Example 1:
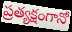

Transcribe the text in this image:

ప్రత్యక్షంగానో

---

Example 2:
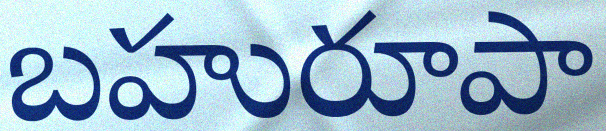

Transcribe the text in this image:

బహురూపా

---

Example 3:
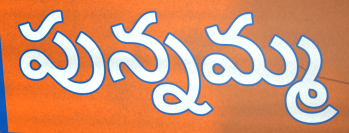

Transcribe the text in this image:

పున్నమ్మ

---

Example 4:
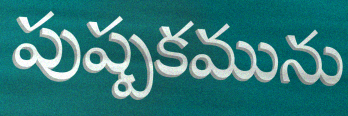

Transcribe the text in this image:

పుష్పకమును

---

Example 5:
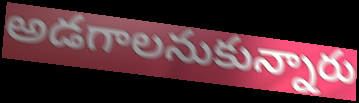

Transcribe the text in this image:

అడగాలనుకున్నారు